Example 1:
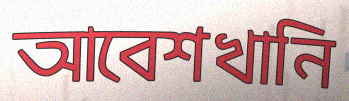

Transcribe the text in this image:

আবেশখানি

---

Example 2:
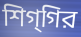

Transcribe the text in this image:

শিগ্‌গির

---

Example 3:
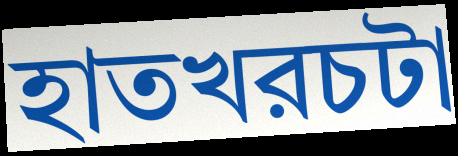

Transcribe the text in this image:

হাতখরচটা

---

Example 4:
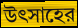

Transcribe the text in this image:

উৎসাহের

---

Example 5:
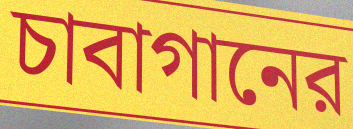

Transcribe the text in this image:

চাবাগানের